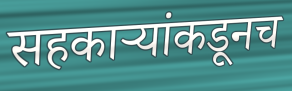
सहकार्‍यांकडूनच